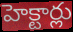
హెక్టార్లు